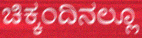
ಚಿಕ್ಕಂದಿನಲ್ಲೂ